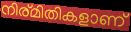
നിര്മിതികളാണ്